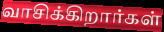
வாசிக்கிறார்கள்